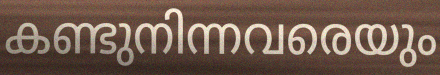
കണ്ടുനിന്നവരെയും